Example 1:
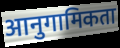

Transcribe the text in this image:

आनुगामिकता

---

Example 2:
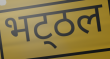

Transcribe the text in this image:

भट्‌ठल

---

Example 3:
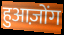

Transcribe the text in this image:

हुआज़ोंग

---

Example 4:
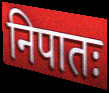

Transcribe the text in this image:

निपातः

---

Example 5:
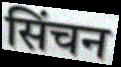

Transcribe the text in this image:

सिंचन